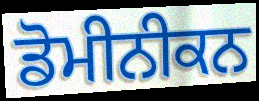
ਡੋਮੀਨੀਕਨ